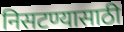
निसटण्यासाठी